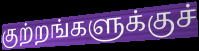
குற்றங்களுக்குச்